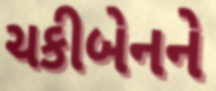
ચકીબેનને